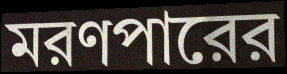
মরণপারের